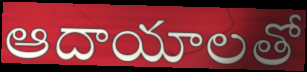
ఆదాయాలతో